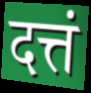
दत्तं